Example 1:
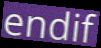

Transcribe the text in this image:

endif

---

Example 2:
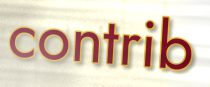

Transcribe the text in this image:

contrib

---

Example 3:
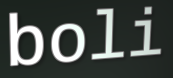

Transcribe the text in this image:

boli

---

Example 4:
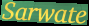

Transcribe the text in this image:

Sarwate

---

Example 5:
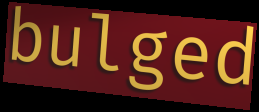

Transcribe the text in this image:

bulged